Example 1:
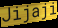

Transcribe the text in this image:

Jijaji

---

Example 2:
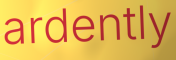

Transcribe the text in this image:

ardently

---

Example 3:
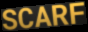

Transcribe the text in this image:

SCARF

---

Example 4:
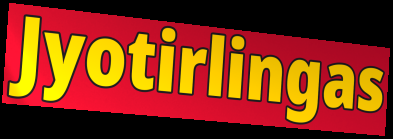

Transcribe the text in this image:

Jyotirlingas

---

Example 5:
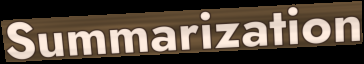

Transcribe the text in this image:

Summarization